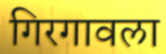
गिरगावला